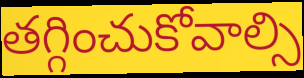
తగ్గించుకోవాల్సి